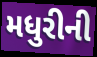
મધુરીની